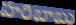
హరిబాబు